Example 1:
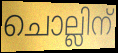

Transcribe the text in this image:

ചൊല്ലിന്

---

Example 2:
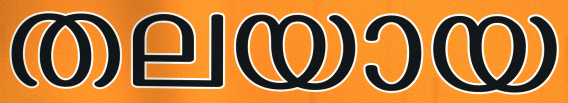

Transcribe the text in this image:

തലയായ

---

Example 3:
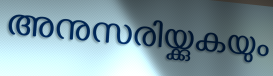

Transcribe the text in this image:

അനുസരിയ്ക്കുകയും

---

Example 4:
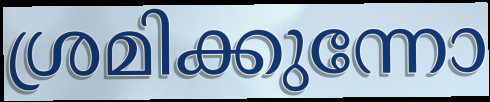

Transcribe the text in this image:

ശ്രമിക്കുന്നോ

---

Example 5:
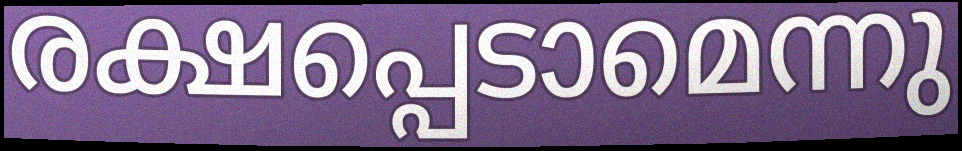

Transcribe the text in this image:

രക്ഷപ്പെടാമെന്നു